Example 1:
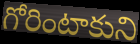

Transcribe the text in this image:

గోరింటాకుని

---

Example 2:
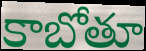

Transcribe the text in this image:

కాబోతూ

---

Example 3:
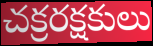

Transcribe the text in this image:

చక్రరక్షకులు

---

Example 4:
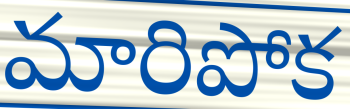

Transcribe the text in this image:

మారిపోక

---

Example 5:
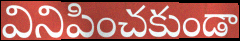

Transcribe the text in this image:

వినిపించకుండా